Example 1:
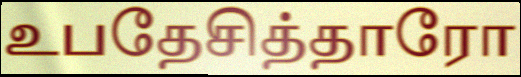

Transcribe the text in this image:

உபதேசித்தாரோ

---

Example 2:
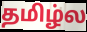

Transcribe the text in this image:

தமிழ்ல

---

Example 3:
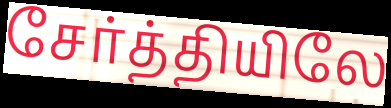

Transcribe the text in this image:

சேர்த்தியிலே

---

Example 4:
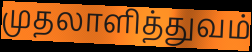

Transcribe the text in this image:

முதலாளித்துவம்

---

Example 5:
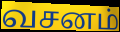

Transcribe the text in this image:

வசனம்